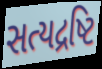
સત્યદ્રષ્ટિ